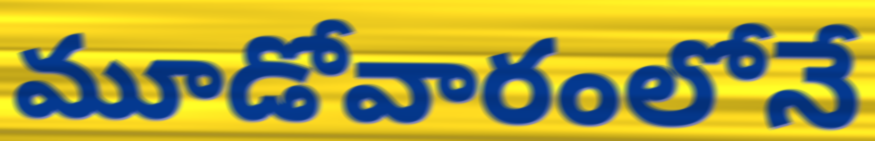
మూడోవారంలోనే